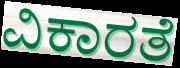
ವಿಕಾರತೆ